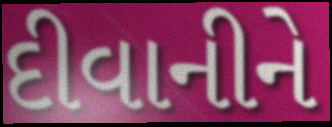
દીવાનીને